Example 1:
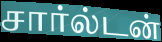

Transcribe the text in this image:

சார்ல்டன்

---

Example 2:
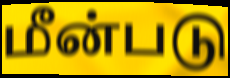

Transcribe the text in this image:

மீன்படு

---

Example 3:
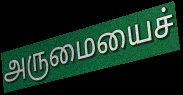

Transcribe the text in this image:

அருமையைச்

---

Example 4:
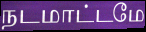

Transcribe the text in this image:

நடமாட்டமே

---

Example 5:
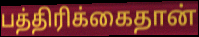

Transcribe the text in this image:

பத்திரிக்கைதான்